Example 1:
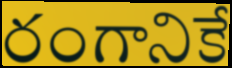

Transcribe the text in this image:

రంగానికే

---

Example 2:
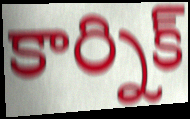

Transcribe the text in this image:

కార్నిక్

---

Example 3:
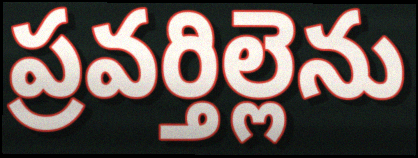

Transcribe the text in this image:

ప్రవర్తిల్లెను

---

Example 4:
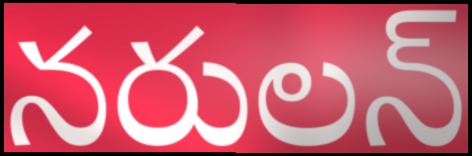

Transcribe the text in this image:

నరులన్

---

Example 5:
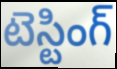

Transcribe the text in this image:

టెస్టింగ్